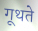
गूथते